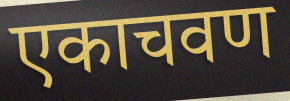
एकाचवण